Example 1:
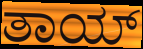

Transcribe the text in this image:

ತಾಯ್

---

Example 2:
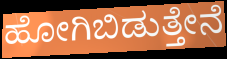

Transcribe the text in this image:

ಹೋಗಿಬಿಡುತ್ತೇನೆ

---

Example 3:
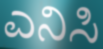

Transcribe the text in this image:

ಎನಿಸಿ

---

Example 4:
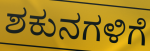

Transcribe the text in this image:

ಶಕುನಗಳಿಗೆ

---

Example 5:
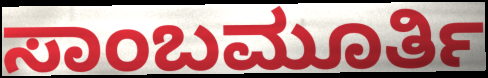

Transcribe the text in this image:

ಸಾಂಬಮೂರ್ತಿ